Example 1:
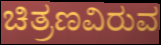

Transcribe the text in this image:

ಚಿತ್ರಣವಿರುವ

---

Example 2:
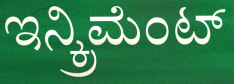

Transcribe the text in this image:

ಇನ್ಕ್ರಿಮೆಂಟ್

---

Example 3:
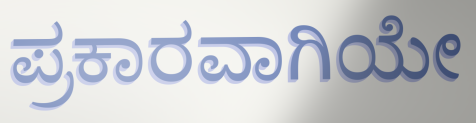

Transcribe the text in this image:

ಪ್ರಕಾರವಾಗಿಯೇ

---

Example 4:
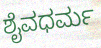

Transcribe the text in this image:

ಶೈವಧರ್ಮ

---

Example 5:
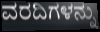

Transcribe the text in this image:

ವರದಿಗಳನ್ನು